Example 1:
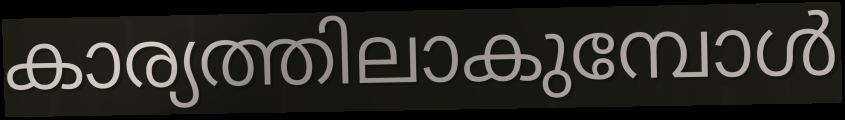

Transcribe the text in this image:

കാര്യത്തിലാകുമ്പോൾ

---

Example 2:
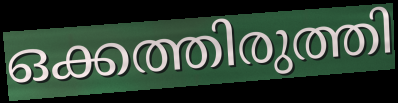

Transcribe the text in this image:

ഒക്കത്തിരുത്തി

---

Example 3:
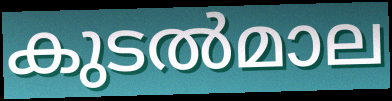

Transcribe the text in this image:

കുടൽമാല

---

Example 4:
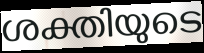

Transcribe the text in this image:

ശക്തിയുടെ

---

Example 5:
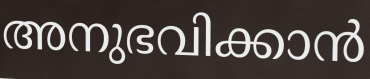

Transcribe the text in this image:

അനുഭവിക്കാൻ